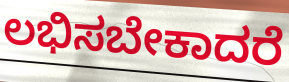
ಲಭಿಸಬೇಕಾದರೆ